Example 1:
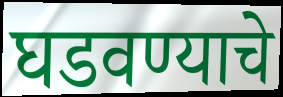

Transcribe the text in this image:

घडवण्याचे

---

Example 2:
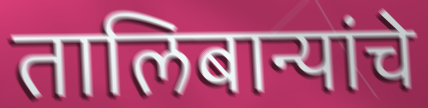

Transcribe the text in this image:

तालिबान्यांचे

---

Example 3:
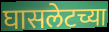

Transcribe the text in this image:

घासलेटच्या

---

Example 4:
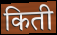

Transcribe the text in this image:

किती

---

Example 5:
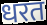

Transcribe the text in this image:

धरत